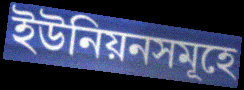
ইউনিয়নসমূহে